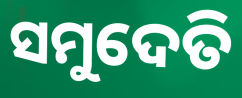
ସମୁଦେତି